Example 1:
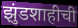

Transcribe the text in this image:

झुंडशाहीची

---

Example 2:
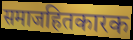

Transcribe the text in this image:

समाजहितकारक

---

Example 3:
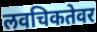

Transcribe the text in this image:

लवचिकतेवर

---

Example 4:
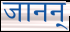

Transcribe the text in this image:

जानन्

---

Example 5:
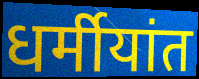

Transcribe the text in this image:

धर्मीयांत